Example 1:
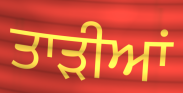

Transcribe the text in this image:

ਤਾੜੀਆਂ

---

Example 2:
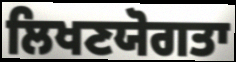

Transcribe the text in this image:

ਲਿਖਣਯੋਗਤਾ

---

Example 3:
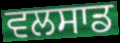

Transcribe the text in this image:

ਵਲਸਾਡ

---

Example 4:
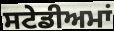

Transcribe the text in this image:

ਸਟੇਡੀਅਮਾਂ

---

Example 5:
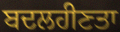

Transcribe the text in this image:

ਬਦਲਹੀਣਤਾ